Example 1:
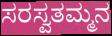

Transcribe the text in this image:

ಸರಸ್ವತಮ್ಮನ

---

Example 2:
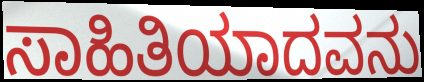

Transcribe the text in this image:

ಸಾಹಿತಿಯಾದವನು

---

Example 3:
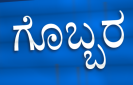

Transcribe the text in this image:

ಗೊಬ್ಬರ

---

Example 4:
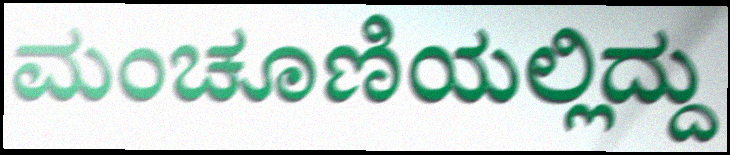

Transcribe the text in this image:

ಮಂಚೂಣಿಯಲ್ಲಿದ್ದು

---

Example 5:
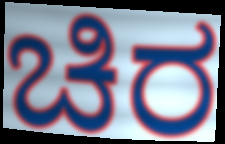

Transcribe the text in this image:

ಚಿರ